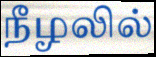
நீழலில்